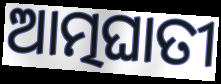
ଆତ୍ମଘାତୀ